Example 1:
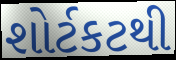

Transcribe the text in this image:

શોર્ટકટથી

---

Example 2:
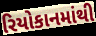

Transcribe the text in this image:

રિયોકાનમાંથી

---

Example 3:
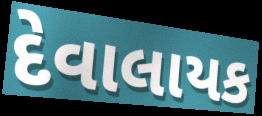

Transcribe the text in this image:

દેવાલાયક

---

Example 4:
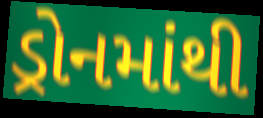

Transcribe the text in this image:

ડ્રોનમાંથી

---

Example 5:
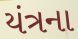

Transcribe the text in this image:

યંત્રના